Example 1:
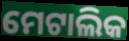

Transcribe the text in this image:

ମେଟାଲିକ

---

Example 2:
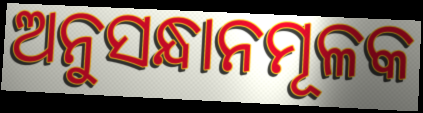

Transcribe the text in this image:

ଅନୁସନ୍ଧାନମୂଳକ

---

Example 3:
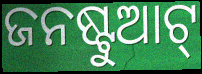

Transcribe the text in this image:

ଜନଷ୍ଟୁଆଟ୍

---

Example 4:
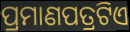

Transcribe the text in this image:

ପ୍ରମାଣପତ୍ରଟିଏ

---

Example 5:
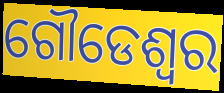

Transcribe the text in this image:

ଗୌଡେଶ୍ୱର